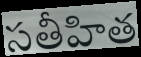
సతీహిత